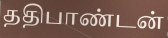
ததிபாண்டன்